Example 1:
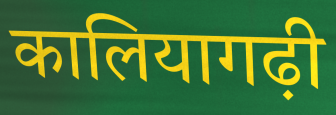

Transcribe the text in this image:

कालियागढ़ी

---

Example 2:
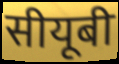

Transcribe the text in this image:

सीयूबी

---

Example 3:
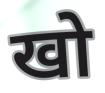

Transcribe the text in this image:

खो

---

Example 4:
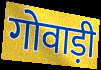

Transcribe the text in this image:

गोवाड़ी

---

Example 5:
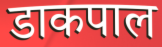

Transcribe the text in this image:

डाकपाल